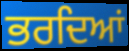
ਭਰਦਿਆਂ